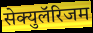
सेक्युलॅरिजम